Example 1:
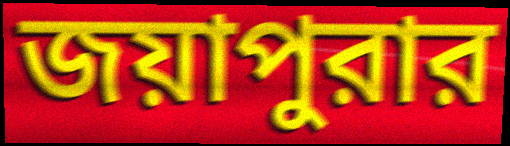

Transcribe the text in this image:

জয়াপুরার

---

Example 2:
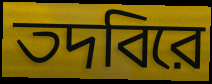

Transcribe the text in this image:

তদবিরে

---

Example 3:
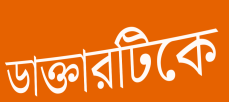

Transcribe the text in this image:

ডাক্তারটিকে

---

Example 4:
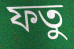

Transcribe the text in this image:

ফতু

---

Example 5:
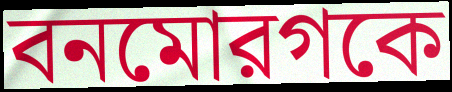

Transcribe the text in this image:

বনমোরগকে